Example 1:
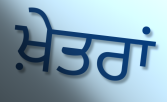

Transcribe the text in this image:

ਖ਼ੇਤਰਾਂ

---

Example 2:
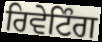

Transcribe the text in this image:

ਰਿਵੇਟਿੰਗ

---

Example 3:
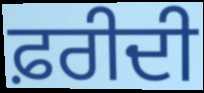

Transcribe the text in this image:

ਫ਼ਰੀਦੀ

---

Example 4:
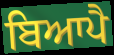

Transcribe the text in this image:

ਬਿਆਪੈ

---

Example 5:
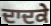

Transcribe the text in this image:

ਦਾਦਕੇ